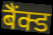
बैंक्ड